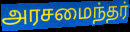
அரசமைந்தர்